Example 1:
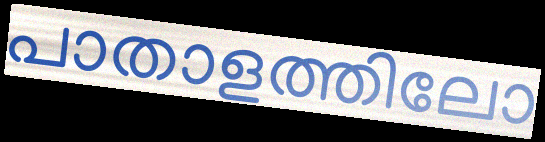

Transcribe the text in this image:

പാതാളത്തിലോ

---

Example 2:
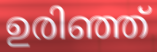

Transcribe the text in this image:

ഉരിഞ്ഞ്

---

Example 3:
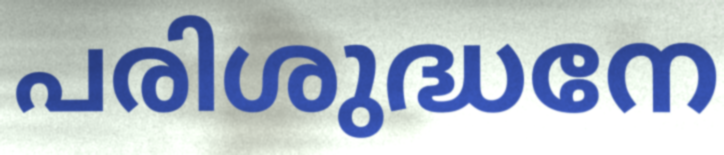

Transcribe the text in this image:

പരിശുദ്ധനേ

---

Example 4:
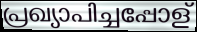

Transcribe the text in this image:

പ്രഖ്യാപിച്ചപ്പോള്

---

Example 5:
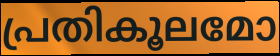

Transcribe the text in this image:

പ്രതികൂലമോ